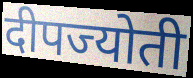
दीपज्योती